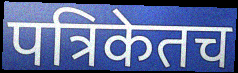
पत्रिकेतच